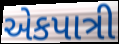
એકપાત્રી